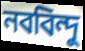
নববিন্দু